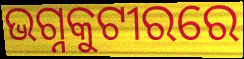
ଭଗ୍ନକୁଟୀରରେ